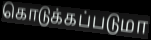
கொடுக்கப்படுமா